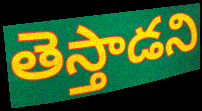
తెస్తాడని